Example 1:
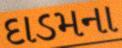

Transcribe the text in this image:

દાડમના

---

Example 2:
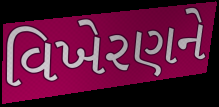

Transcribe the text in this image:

વિખેરણને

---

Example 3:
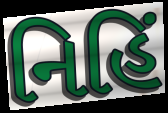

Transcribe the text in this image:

નિહિં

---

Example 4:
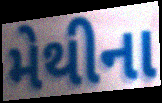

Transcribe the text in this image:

મેથીના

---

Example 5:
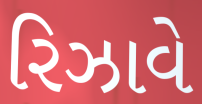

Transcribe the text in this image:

રિઝાવે